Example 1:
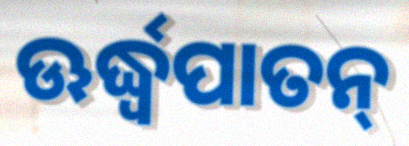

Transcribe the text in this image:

ଊର୍ଦ୍ଧ୍ବପାତନ୍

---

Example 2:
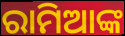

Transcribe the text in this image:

ରାମିଆଙ୍କ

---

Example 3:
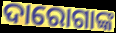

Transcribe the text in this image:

ଦାରୋଗାଙ୍କ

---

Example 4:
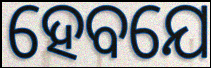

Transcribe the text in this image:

ହେବଯେ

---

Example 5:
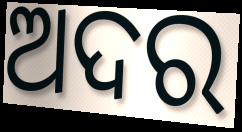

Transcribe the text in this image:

ଅଦର